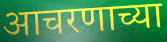
आचरणाच्या